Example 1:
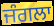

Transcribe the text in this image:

ਜੰਗਲਾ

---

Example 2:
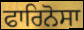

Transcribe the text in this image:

ਫਾਰਿਨੋਸਾ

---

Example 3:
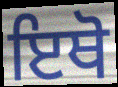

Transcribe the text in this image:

ਇਥੋ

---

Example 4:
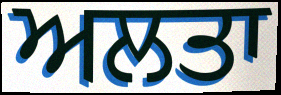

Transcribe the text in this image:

ਅਲਤਾ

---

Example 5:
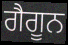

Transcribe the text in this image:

ਗੈਗੂਨ